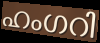
ഹംഗറി